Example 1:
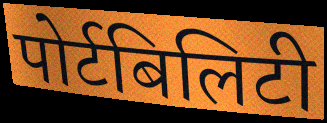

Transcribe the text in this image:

पोर्टबिलिटी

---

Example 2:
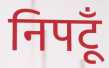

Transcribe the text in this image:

निपटूँ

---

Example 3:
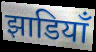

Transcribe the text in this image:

झाडियाँ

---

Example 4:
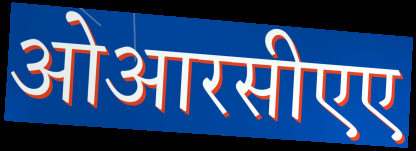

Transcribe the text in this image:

ओआरसीएए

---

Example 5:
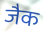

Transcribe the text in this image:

जैक